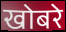
खोबरे